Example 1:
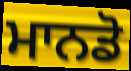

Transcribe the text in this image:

ਮਾਨਡੋ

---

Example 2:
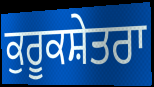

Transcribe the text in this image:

ਕੁਰੂਕਸ਼ੇਤਰਾ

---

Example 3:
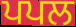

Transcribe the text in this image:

ਪਪਲ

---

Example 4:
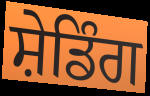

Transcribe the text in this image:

ਸ਼ੇਡਿੰਗ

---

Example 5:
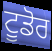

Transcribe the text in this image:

ਟੂਡੋਰ